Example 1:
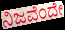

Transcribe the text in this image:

ನಿಜವೆಂದೇ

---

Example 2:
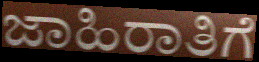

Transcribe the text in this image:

ಜಾಹಿರಾತಿಗೆ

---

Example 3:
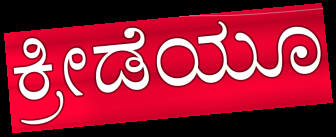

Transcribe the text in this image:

ಕ್ರೀಡೆಯೂ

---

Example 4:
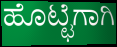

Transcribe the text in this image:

ಹೊಟ್ಟೆಗಾಗಿ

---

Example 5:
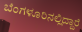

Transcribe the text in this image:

ಬೆಂಗಳೂರಿನಲ್ಲಿದ್ದಾರೆ